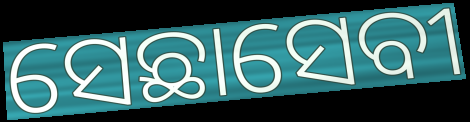
ସେଛାସେବୀ